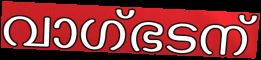
വാഗ്ഭടന്